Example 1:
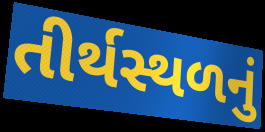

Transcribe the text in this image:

તીર્થસ્થળનું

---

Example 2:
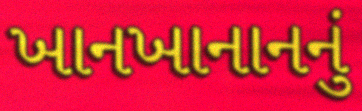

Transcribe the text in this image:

ખાનખાનાનનું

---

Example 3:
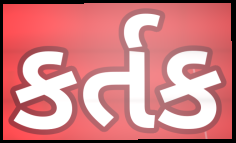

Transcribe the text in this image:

કર્તક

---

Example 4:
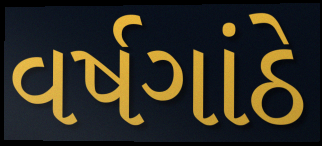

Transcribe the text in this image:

વર્ષગાંઠે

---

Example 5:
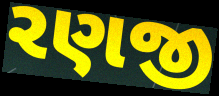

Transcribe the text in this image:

રણજી